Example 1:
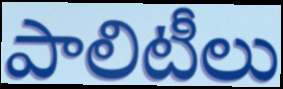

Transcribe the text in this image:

పాలిటీలు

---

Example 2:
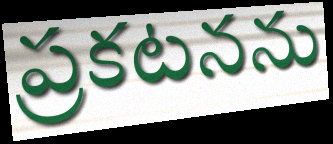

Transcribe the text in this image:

ప్రకటనను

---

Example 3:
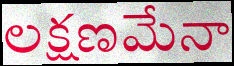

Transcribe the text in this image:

లక్షణమేనా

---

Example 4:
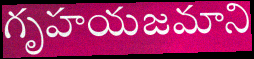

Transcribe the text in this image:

గృహయజమాని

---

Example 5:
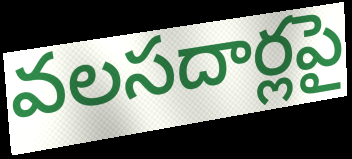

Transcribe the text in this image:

వలసదార్లపై